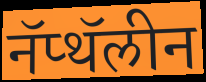
नॅप्थॅलीन